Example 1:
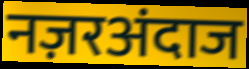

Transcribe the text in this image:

नज़रअंदाज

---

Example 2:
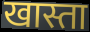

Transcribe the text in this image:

खास्ता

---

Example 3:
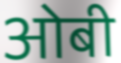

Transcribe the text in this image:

ओबी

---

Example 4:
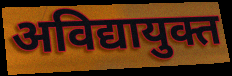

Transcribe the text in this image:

अविद्यायुक्त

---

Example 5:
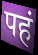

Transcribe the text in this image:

पहं